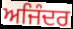
ਅਜਿੰਦਰ